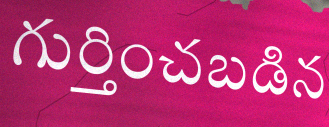
గుర్తించబడిన